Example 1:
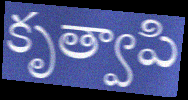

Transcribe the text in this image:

కృత్వాపి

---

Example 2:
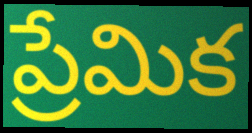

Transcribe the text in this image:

ప్రేమిక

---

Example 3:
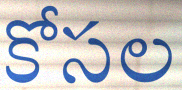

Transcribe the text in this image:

కోసల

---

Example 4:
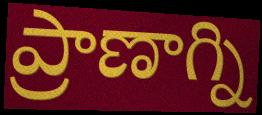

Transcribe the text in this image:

ప్రాణాగ్ని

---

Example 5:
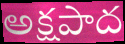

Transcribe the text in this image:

అక్షపాద